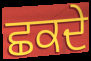
ਛਕਦੇ